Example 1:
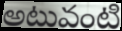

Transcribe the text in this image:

అటువంటి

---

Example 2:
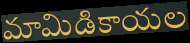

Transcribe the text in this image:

మామిడికాయల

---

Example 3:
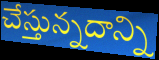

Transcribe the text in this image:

చేస్తున్నదాన్ని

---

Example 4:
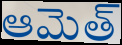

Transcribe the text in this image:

ఆమెత్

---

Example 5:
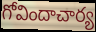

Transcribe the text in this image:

గోవిందాచార్య